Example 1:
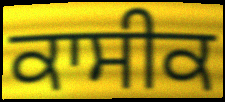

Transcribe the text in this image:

ਕਾਸੀਕ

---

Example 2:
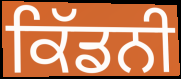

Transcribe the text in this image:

ਕਿੱਡਨੀ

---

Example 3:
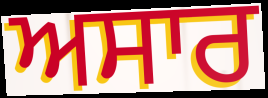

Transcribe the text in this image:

ਅਸਾਰ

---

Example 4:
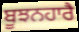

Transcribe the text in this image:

ਬੂਝਨਹਾਰੈ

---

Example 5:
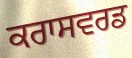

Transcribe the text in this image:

ਕਰਾਸਵਰਡ